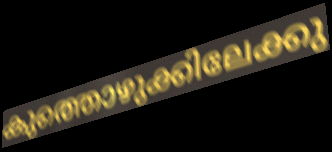
കുത്തൊഴുക്കിലേക്കു